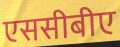
एससीबीए